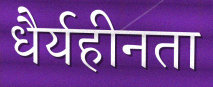
धैर्यहीनता